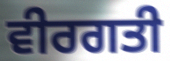
ਵੀਰਗਤੀ